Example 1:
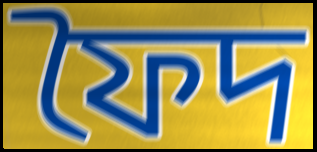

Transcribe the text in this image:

ফৈদ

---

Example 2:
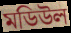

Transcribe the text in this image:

মডিউল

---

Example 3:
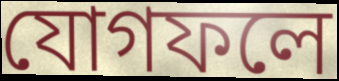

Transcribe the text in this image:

যোগফলে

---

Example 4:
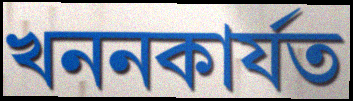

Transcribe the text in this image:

খননকাৰ্যত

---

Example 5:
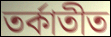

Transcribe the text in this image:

তৰ্কাতীত